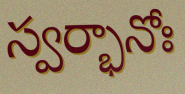
స్వర్భానోః